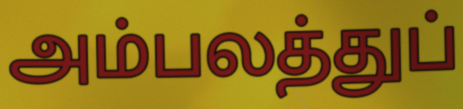
அம்பலத்துப்